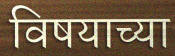
विषयाच्या